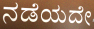
ನಡೆಯದೇ